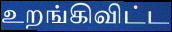
உறங்கிவிட்ட